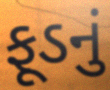
ફૂડનું